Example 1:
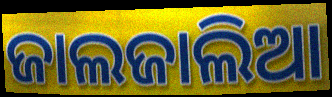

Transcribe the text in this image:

ଜାଲଜାଲିଆ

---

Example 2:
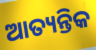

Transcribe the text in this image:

ଆତ୍ୟନ୍ତିକ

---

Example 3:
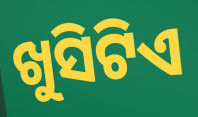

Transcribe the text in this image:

ଖୁସିଟିଏ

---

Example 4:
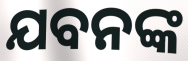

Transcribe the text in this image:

ଯବନଙ୍କ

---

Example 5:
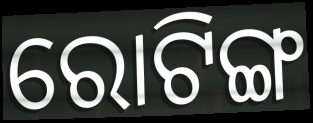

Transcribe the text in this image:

ରୋଟିଙ୍ଗ